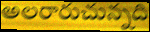
అలరారుచున్నది